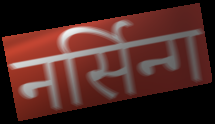
नर्सिन्ग